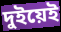
দুইয়েই